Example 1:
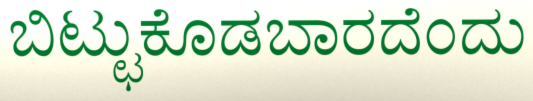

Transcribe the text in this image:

ಬಿಟ್ಟುಕೊಡಬಾರದೆಂದು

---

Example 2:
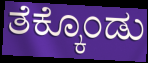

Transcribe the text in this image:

ತೆಕ್ಕೊಂಡು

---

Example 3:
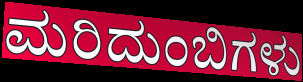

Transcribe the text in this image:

ಮರಿದುಂಬಿಗಳು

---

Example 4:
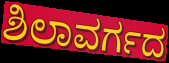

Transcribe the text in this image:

ಶಿಲಾವರ್ಗದ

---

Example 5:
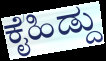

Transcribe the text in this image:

ಕೈಹಿಡ್ದು